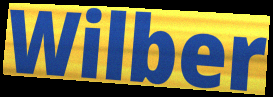
Wilber